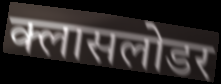
क्लासलोडर